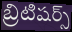
బ్రిటిషర్స్